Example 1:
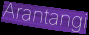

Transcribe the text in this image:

Arantangi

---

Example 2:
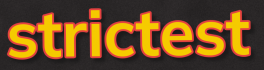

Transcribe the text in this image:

strictest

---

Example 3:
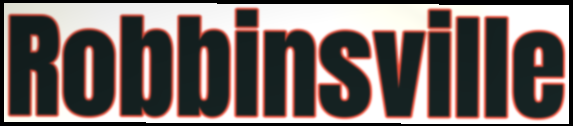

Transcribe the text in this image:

Robbinsville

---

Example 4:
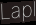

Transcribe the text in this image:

Lapl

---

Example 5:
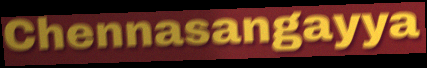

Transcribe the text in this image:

Chennasangayya